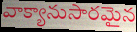
వాక్యానుసారమైన